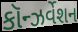
કૉન્ઝર્વેશન